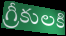
గ్రీకులకి